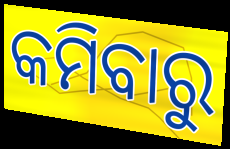
କମିବାରୁ